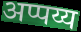
अप्पय्य